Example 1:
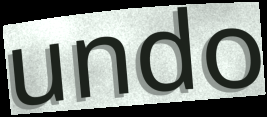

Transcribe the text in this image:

undo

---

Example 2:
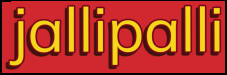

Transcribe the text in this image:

jallipalli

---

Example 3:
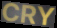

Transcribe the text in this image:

CRY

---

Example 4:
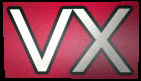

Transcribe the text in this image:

VX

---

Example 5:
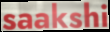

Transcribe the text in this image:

saakshi